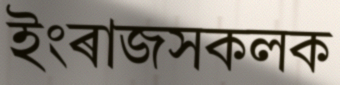
ইংৰাজসকলক